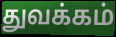
துவக்கம்